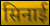
सिनाई